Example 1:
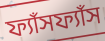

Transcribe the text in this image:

ফ্যাঁসফ্যাঁস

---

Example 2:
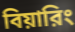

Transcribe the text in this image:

বিয়ারিং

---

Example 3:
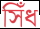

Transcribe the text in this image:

সিঁধ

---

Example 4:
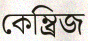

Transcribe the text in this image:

কেম্ব্রিজ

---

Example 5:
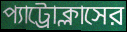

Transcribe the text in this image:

প্যাট্রোক্লাসের